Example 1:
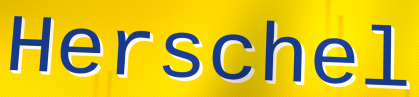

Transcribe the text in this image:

Herschel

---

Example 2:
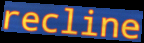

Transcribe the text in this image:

recline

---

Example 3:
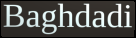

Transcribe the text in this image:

Baghdadi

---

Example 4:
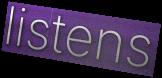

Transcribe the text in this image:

listens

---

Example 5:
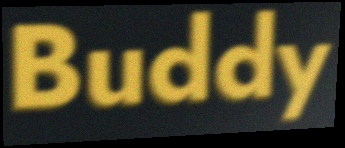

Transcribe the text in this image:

Buddy